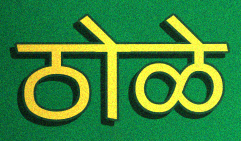
ठोळे